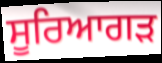
ਸੂਰਿਆਗੜ